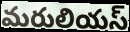
మరులియస్